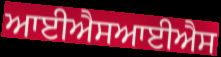
ਆਈਐਸਆਈਐਸ